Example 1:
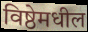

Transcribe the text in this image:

विष्ठेमधील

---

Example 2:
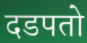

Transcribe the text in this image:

दडपतो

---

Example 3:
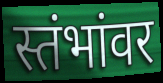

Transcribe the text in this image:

स्तंभांवर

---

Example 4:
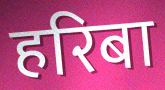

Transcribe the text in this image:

हरिबा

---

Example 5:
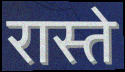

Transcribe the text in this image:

रास्ते